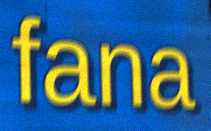
fana